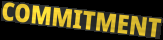
COMMITMENT